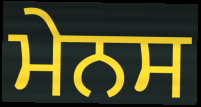
ਮੇਨਸ